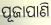
ପୂଜାପାଣି